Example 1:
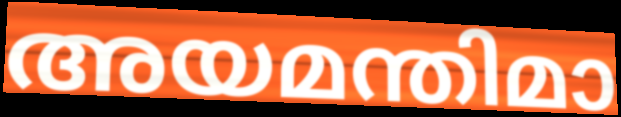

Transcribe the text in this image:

അയമന്തിമാ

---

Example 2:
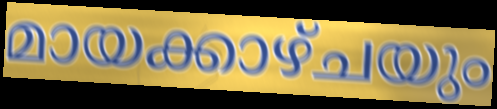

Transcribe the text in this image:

മായക്കാഴ്ചയും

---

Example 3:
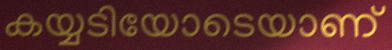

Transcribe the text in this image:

കയ്യടിയോടെയാണ്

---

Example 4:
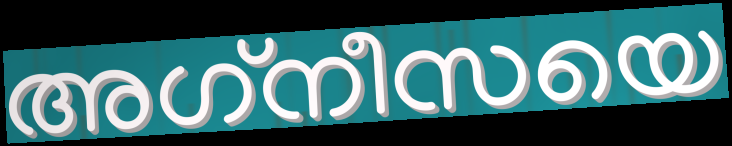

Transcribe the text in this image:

അഗ്‌നീസയെ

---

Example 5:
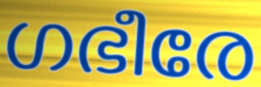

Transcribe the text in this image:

ഗഭീരേ